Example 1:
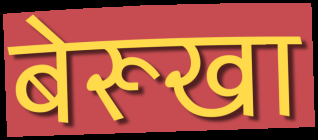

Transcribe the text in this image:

बेरूखा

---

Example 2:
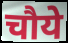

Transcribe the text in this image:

चौये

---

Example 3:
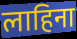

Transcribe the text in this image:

लाहिना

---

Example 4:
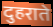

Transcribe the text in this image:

दुहराते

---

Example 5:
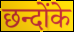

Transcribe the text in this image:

छन्दोंके